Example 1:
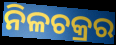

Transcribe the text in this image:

ନିଳଚକ୍ରର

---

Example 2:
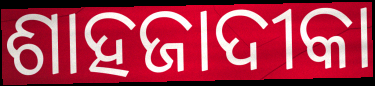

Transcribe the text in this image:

ଶାହଜାଦୀକା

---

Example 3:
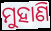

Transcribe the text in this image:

ମୁହାଣି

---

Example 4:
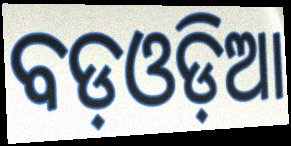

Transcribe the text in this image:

ବଡ଼ଓଡ଼ିଆ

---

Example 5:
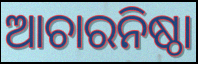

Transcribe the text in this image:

ଆଚାରନିଷ୍ଠା